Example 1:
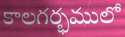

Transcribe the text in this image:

కాలగర్భములో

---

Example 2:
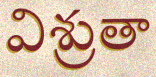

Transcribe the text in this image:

విశ్రుతా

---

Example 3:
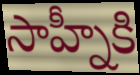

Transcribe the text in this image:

సాహ్నీకి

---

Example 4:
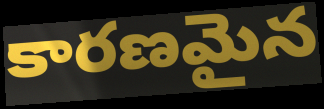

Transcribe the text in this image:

కారణమైన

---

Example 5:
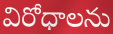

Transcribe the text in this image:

విరోధాలను